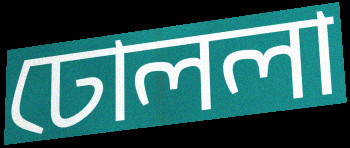
ঢোললা